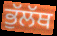
ਭੁੱਲੱਥ